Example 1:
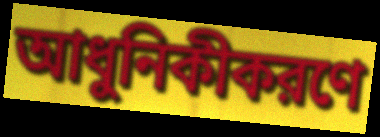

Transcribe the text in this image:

আধুনিকীকরণে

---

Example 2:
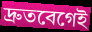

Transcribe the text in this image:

দ্রুতবেগেই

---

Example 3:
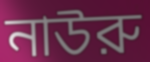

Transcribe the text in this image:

নাউরু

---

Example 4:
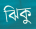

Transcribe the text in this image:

ঝিকু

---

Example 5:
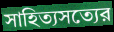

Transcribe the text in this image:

সাহিত্যসত্যের